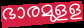
ഭാരമുളള